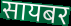
सायबर